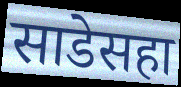
साडेसहा